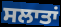
ਸਲਾਤਾਂ